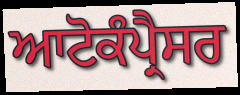
ਆਟੋਕੰਪ੍ਰੈਸਰ